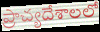
ప్రాచ్యదేశాలలో